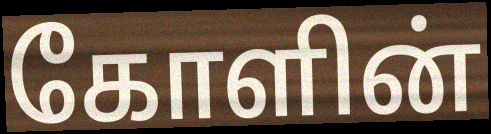
கோளின்